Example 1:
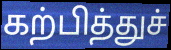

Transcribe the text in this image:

கற்பித்துச்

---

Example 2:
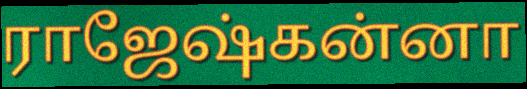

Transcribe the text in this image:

ராஜேஷ்கன்னா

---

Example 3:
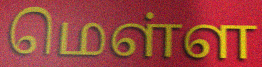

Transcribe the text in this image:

மெள்ள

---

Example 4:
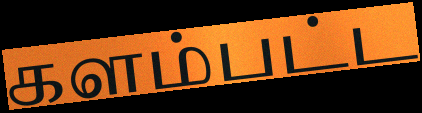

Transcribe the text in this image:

களம்பட்ட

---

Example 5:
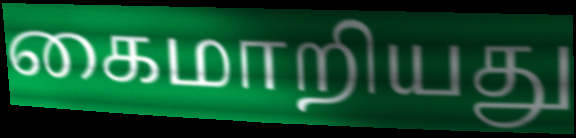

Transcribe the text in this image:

கைமாறியது